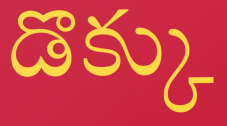
డొక్కు